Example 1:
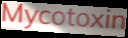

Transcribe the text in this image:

Mycotoxin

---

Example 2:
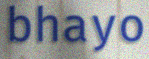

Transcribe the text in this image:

bhayo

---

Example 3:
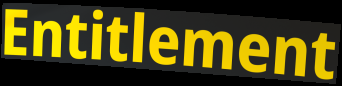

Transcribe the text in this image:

Entitlement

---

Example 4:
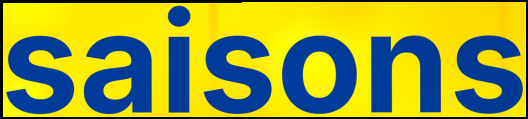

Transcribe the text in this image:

saisons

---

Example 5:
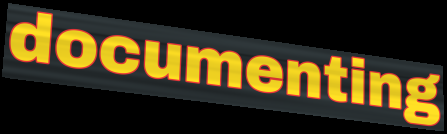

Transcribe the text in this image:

documenting